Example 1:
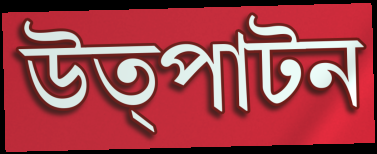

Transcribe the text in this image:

উত্পাটন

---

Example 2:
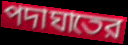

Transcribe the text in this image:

পদাঘাতের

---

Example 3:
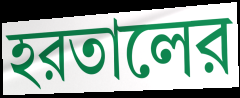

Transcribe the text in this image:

হরতালের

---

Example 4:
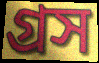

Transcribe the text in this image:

গ্রস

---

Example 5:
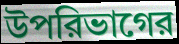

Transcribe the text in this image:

উপরিভাগের